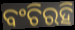
ବଂଚିରହି